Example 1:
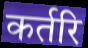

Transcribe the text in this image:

कर्तरि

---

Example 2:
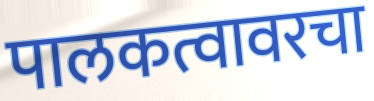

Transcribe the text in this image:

पालकत्वावरचा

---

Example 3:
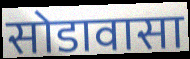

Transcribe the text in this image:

सोडावासा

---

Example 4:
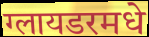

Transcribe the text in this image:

ग्लायडरमधे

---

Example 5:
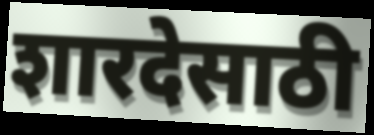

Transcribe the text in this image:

शारदेसाठी